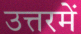
उत्तरमें